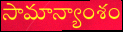
సామాన్యాంశం